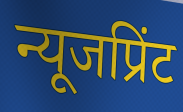
न्यूजप्रिंट